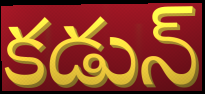
కడున్